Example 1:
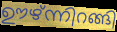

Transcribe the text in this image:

ഊഴ്ന്നിറങ്ങി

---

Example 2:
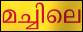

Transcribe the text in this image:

മച്ചിലെ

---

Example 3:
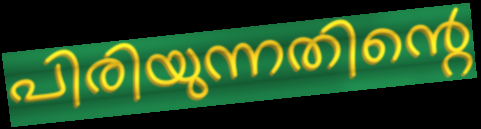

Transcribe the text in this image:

പിരിയുന്നതിന്റെ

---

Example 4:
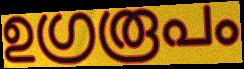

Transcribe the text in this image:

ഉഗ്രരൂപം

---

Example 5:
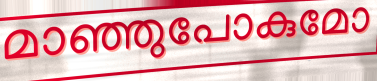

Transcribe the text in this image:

മാഞ്ഞുപോകുമോ